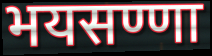
भयसण्णा